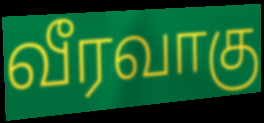
வீரவாகு